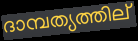
ദാമ്പത്യത്തില്